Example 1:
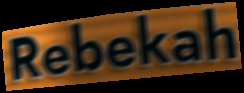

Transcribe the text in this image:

Rebekah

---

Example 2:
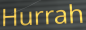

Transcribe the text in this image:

Hurrah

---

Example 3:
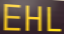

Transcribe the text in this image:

EHL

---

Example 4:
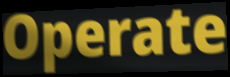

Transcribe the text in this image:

Operate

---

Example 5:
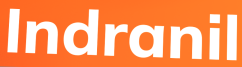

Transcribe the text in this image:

Indranil